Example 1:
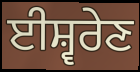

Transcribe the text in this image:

ਈਸ਼੍ਵਰੇਣ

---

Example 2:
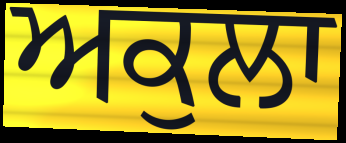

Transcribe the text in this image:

ਅਕੁਲਾ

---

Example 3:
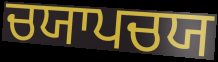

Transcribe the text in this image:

ਚਯਾਪਚਯ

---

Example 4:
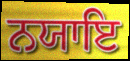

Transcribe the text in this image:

ਨਯਾਇ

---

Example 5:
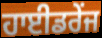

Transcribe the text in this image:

ਹਾਈਡਰੇਂਜ